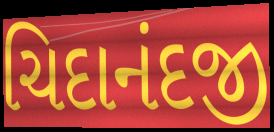
ચિદાનંદજી